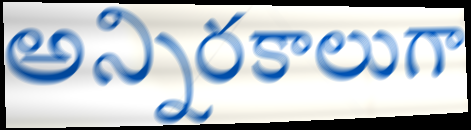
అన్నిరకాలుగా